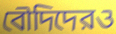
বৌদিদেরও